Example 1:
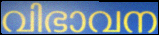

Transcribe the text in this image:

വിഭാവന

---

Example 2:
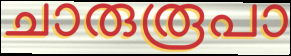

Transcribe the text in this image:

ചാരുരൂപാ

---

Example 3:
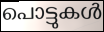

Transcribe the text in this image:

പൊട്ടുകൾ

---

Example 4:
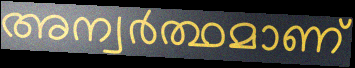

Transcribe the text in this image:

അന്വർത്ഥമാണ്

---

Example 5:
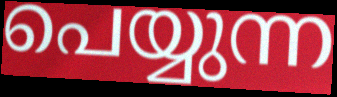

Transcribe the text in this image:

പെയ്യുന്ന